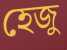
হেজু